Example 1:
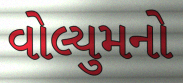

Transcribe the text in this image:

વોલ્યુમનો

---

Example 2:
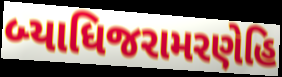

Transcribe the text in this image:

બ્યાધિજરામરણેહિ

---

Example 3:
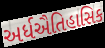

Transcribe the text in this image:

અર્ધઐતિહાસિક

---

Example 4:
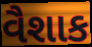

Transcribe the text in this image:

વૈશાક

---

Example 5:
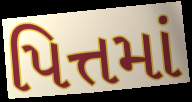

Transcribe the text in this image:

પિત્તમાં